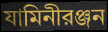
যামিনীরঞ্জন